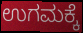
ಉಗಮಕ್ಕೆ